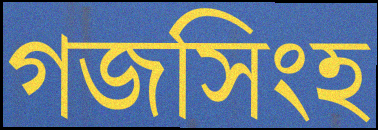
গজসিংহ